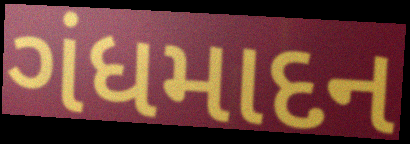
ગંધમાદન